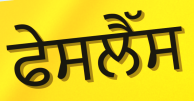
ਫੇਸਲੈੱਸ